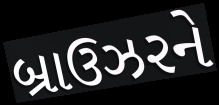
બ્રાઉઝરને